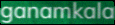
ganamkala